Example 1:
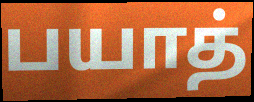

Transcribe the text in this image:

பயாத்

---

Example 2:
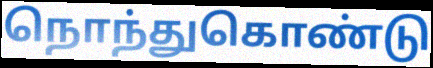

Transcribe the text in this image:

நொந்துகொண்டு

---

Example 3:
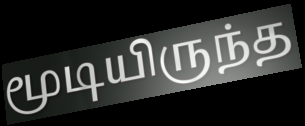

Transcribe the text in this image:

மூடியிருந்த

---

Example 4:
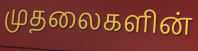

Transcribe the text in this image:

முதலைகளின்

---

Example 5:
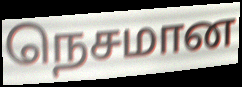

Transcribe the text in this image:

நெசமான